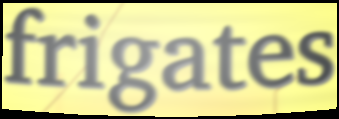
frigates